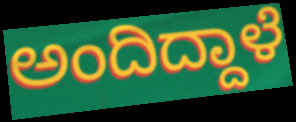
ಅಂದಿದ್ದಾಳೆ